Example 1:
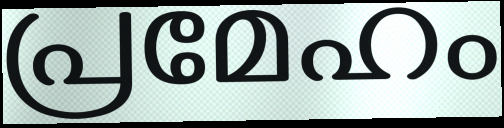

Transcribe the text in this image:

പ്രമേഹം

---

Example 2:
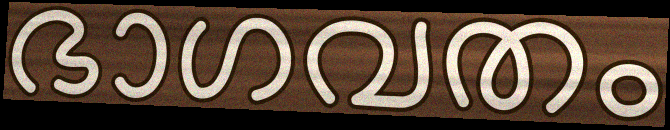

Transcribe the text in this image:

ഭാഗവതം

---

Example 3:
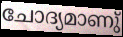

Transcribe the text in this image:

ചോദ്യമാണു്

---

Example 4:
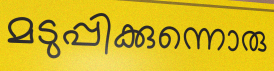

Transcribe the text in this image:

മടുപ്പിക്കുന്നൊരു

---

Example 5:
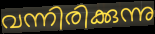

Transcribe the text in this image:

വന്നിരിക്കുന്നു